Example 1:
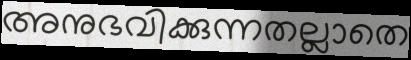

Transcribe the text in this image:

അനുഭവിക്കുന്നതല്ലാതെ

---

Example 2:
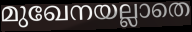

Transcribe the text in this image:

മുഖേനയല്ലാതെ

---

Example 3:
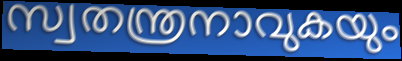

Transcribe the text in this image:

സ്വതന്ത്രനാവുകയും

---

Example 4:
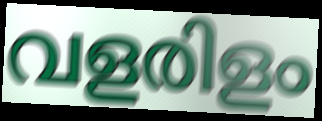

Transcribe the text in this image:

വളരിളം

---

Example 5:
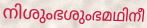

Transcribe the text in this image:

നിശുംഭശുംഭമഥിനീ